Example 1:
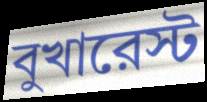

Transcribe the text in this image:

বুখারেস্ট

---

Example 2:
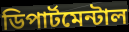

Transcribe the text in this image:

ডিপার্টমেন্টাল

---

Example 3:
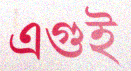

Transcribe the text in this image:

এগুই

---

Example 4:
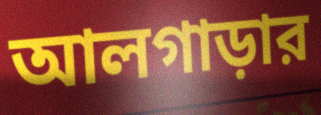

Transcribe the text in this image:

আলগাড়ার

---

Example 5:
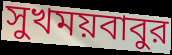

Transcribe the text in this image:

সুখময়বাবুর